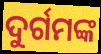
ଦୁର୍ଗମଙ୍କ